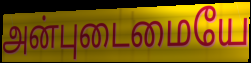
அன்புடைமையே